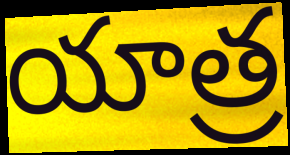
యాత్ర